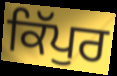
ਕਿੱਪੁਰ